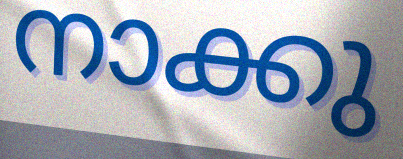
നാക്കു